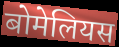
बोमेलियस